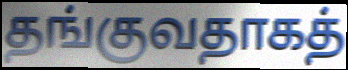
தங்குவதாகத்